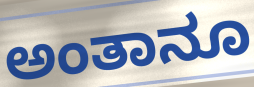
ಅಂತಾನೂ